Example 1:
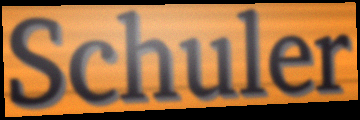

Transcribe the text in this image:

Schuler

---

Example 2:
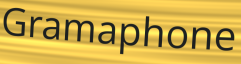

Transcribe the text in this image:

Gramaphone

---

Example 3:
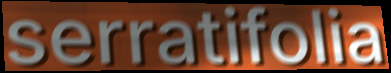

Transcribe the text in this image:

serratifolia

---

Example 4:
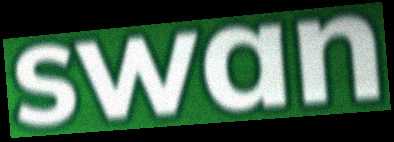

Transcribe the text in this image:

swan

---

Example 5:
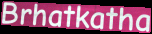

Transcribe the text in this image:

Brhatkatha